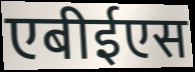
एबीईएस